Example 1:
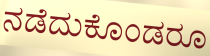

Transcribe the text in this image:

ನಡೆದುಕೊಂಡರೂ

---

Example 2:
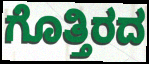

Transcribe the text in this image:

ಗೊತ್ತಿರದ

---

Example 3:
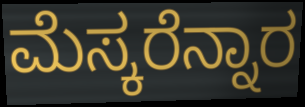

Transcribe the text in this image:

ಮೆಸ್ಕರೆನ್ನಾರ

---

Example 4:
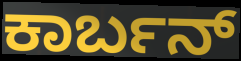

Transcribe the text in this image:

ಕಾರ್ಬನ್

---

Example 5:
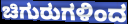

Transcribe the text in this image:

ಚಿಗುರುಗಳಿಂದ